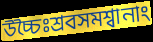
উচ্চৈঃশ্রবসমশ্বানাং